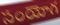
సంయోగ